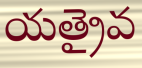
యత్రైవ